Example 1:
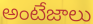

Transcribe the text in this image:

అంటేజాలు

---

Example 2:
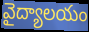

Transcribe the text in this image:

వైద్యాలయం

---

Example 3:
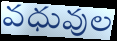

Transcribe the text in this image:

వధువుల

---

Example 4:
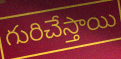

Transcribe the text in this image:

గురిచేస్తాయి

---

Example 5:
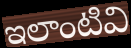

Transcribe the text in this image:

ఇలాంటివి